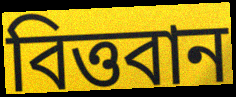
বিত্তবান